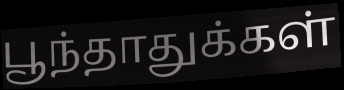
பூந்தாதுக்கள்